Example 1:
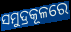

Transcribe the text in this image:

ସମୁଦ୍ରକୂଳରେ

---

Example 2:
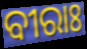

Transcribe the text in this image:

ବୀରାଃ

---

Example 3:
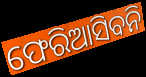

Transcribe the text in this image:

ଫେରିଆସିବନି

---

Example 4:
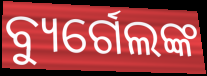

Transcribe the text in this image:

ବ୍ୟୁର୍ଗେଲଙ୍କ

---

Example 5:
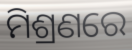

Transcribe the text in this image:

ମିଶ୍ରଣରେ